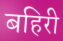
बहिरी